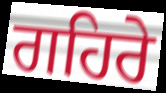
ਗਹਿਰੇ